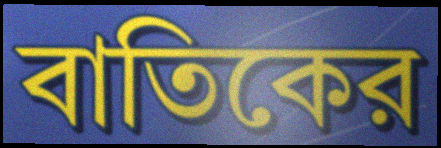
বাতিকের